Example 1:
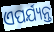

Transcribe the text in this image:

ଏପର୍ଯ୍ୟନ୍ତ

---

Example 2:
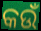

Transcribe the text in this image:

କଉଁ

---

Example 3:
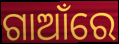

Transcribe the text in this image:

ଗାଆଁରେ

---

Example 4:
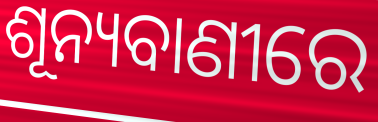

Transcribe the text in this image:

ଶୂନ୍ୟବାଣୀରେ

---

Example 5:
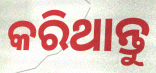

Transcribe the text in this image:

କରିଥାନ୍ତୁ